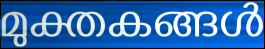
മുക്തകങ്ങൾ